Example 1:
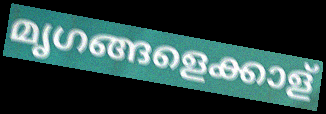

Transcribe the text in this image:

മൃഗങ്ങളെക്കാള്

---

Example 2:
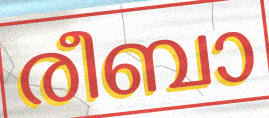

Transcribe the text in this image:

രീബാ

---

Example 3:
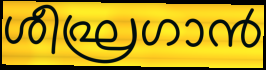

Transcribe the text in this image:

ശീഘ്രഗാൻ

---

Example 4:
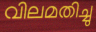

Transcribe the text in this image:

വിലമതിച്ചു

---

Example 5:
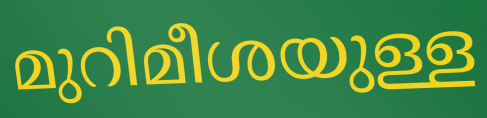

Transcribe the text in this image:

മുറിമീശയുള്ള